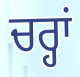
ਚਰ੍ਹਾਂ